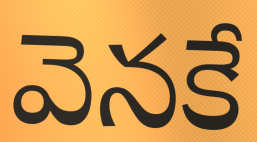
వెనకే